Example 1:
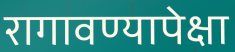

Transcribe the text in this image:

रागावण्यापेक्षा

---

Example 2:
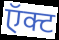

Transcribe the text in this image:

ऍक्ट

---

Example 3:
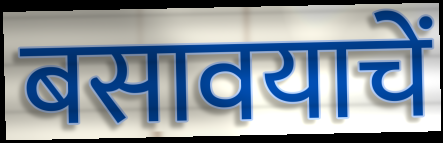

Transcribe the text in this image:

बसावयाचें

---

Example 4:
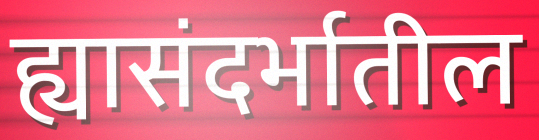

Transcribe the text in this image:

ह्यासंदर्भातील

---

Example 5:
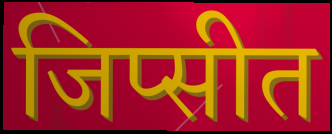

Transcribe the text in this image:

जिप्सीत